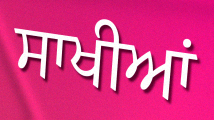
ਸਾਖੀਆਂ